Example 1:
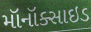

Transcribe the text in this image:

મૉનૉક્સાઇડ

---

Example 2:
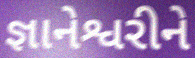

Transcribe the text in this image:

જ્ઞાનેશ્વરીને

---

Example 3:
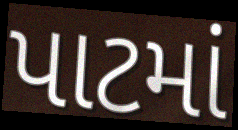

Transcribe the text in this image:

પાટમાં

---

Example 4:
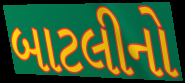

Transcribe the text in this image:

બાટલીનો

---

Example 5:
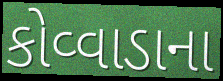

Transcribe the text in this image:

કોવ્વાડાના